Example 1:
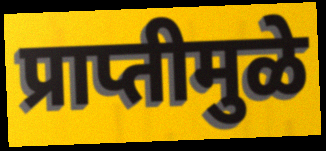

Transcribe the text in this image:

प्राप्तीमुळे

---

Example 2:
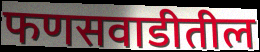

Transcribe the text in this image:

फणसवाडीतील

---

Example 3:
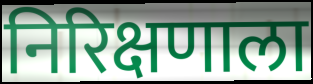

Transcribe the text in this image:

निरिक्षणाला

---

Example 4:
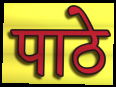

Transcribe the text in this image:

पाठे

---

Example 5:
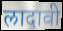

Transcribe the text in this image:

लादावी